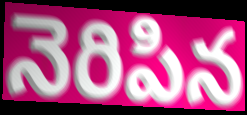
నెరిపిన